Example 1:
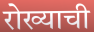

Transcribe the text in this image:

रोख्याची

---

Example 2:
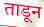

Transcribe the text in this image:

ताडून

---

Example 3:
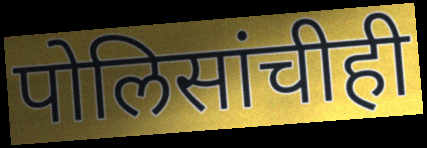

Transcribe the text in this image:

पोलिसांचीही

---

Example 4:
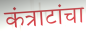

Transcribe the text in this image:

कंत्राटांचा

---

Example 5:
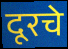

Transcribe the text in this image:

दूरचे